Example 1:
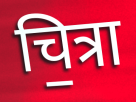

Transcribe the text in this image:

चि॒त्रा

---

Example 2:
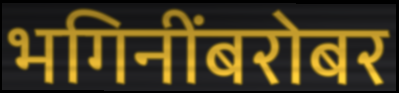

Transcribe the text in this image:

भगिनींबरोबर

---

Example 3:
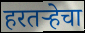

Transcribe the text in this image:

हरतऱ्हेचा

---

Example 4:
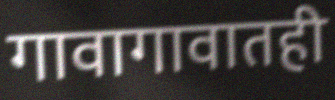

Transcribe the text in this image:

गावागावातही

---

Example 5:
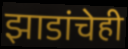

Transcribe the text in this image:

झाडांचेही